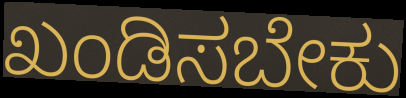
ಖಂಡಿಸಬೇಕು